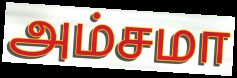
அம்சமா